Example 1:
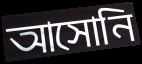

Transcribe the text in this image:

আসোনি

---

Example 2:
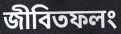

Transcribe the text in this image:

জীবিতফলং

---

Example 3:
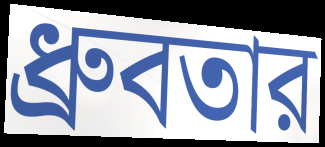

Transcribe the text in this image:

ধ্রুবতার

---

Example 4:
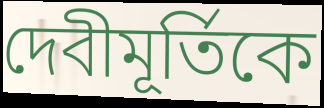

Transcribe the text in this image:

দেবীমূর্তিকে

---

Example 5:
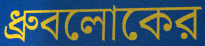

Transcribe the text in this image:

ধ্রুবলোকের